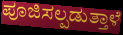
ಪೂಜಿಸಲ್ಪಡುತ್ತಾಳೆ